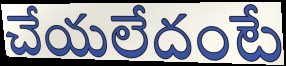
చేయలేదంటే